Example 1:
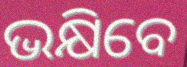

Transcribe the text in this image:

ଭକ୍ଷିବେ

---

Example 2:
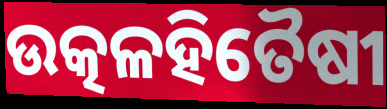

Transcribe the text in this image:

ଉତ୍କଳହିତୈଷୀ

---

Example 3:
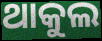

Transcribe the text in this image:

ଥାକୁଲ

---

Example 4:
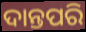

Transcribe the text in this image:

ଦାନ୍ତପରି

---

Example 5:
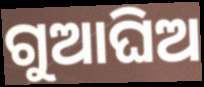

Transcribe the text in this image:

ଗୁଆଘିଅ